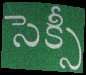
సెక్సీ